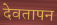
देवतापन